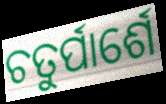
ଚତୁର୍ପାର୍ଶେ